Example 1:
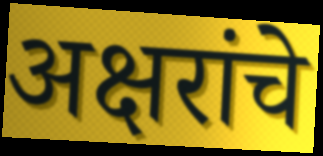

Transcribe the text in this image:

अक्षरांचे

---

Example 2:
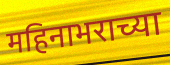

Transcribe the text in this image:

महिनाभराच्या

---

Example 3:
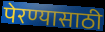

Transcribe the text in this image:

पेरण्यासाठी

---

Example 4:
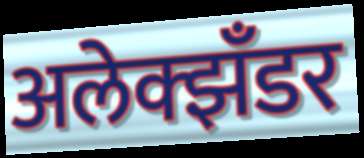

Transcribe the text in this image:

अलेक्झँडर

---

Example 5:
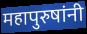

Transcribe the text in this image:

महापुरुषांनी